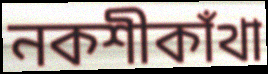
নকশীকাঁথা